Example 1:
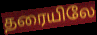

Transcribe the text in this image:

தரையிலே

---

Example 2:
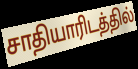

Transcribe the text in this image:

சாதியாரிடத்தில்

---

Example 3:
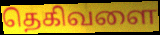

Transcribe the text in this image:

தெகிவளை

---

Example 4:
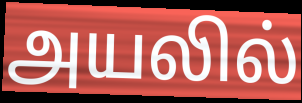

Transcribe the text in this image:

அயலில்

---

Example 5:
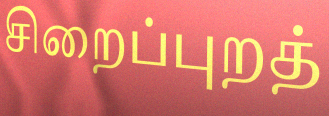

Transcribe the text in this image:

சிறைப்புறத்